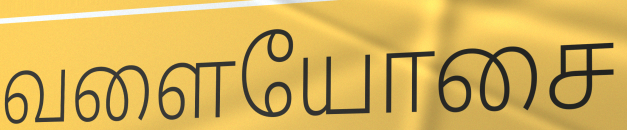
வளையோசை